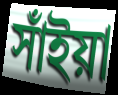
সাঁইয়া